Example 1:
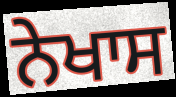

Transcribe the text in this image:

ਨੇਖਾਸ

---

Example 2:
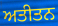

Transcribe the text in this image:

ਅਤੀਤਨ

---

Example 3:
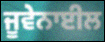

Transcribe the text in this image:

ਜੂਵੇਨਾਈਲ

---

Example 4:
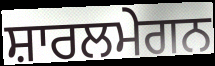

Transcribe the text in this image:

ਸ਼ਾਰਲਮੇਗਨ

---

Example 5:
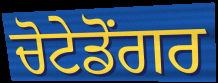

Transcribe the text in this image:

ਚੋਟੇਡੋਂਗਰ